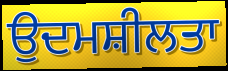
ਉਦਮਸ਼ੀਲਤਾ